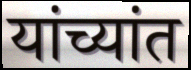
यांच्यांत